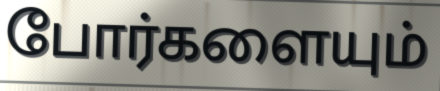
போர்களையும்